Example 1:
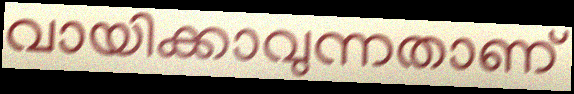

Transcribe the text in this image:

വായിക്കാവുന്നതാണ്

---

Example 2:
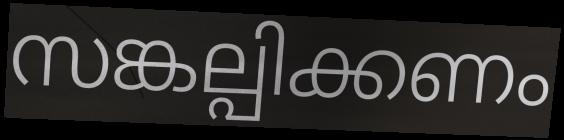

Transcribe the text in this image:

സങ്കല്പിക്കണം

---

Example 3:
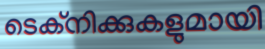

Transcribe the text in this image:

ടെക്നിക്കുകളുമായി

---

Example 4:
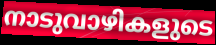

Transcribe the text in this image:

നാടുവാഴികളുടെ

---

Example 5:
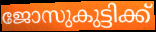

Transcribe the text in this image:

ജോസുകുട്ടിക്ക്